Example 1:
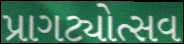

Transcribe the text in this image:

પ્રાગટ્યોત્સવ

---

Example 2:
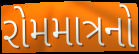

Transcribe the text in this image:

રોમમાત્રનો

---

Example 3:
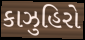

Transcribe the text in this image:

કાઝુહિરો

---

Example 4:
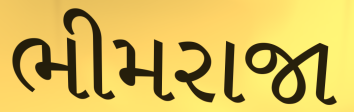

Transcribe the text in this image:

ભીમરાજા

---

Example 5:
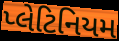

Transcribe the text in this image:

પ્લેટિનિયમ